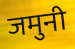
जमुनी